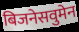
बिजनेसवुमेन